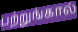
பற்றுங்கால்